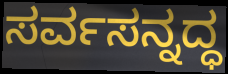
ಸರ್ವಸನ್ನದ್ಧ